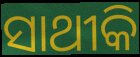
ସାଥୀକି